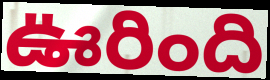
ఊరింది